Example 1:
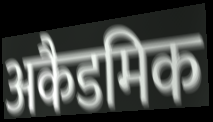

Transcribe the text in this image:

अकैडमिक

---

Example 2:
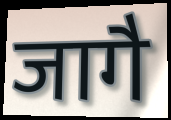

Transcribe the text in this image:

जागै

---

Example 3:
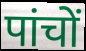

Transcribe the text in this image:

पांचों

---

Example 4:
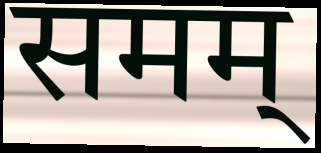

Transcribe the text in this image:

समम्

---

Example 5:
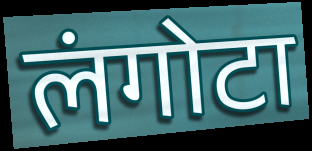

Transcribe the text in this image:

लंगोटा